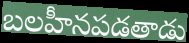
బలహీనపడతాడు